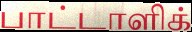
பாட்டாளிக்